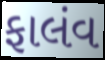
ફાલંવ